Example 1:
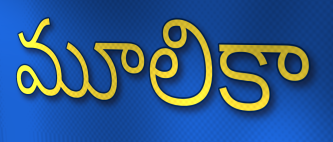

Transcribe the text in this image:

మూలికా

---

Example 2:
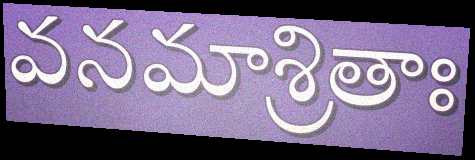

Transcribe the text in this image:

వనమాశ్రితాః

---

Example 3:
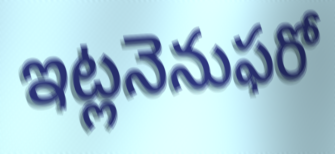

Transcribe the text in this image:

ఇట్లనెనుఫరో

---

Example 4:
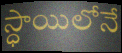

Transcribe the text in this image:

స్ధాయిలోనే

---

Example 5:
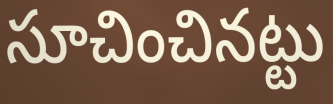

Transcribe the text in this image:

సూచించినట్టు